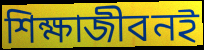
শিক্ষাজীবনই